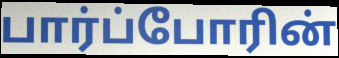
பார்ப்போரின்